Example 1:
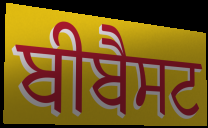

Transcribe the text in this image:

ਬੀਬੈਸਟ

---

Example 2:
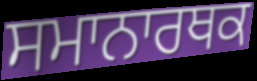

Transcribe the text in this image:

ਸਮਾਨਾਰਥਕ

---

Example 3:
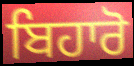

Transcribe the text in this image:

ਬਿਹਾਰੋ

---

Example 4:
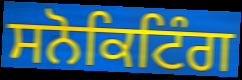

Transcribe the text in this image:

ਸਨੋਕਿਟਿੰਗ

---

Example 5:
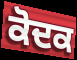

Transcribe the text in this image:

ਕੋਦਕ